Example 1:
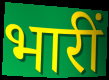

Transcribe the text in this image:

भारीं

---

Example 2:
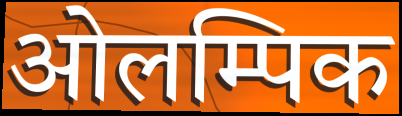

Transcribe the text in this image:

ओलम्पिक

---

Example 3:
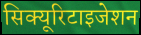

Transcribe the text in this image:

सिक्यूरिटाइजेशन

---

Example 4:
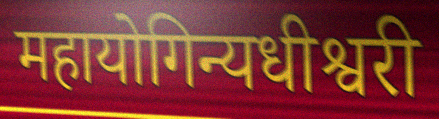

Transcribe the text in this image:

महायोगिन्यधीश्वरी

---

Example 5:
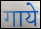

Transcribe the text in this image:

गाये